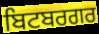
ਬਿਟਬਰਗਰ